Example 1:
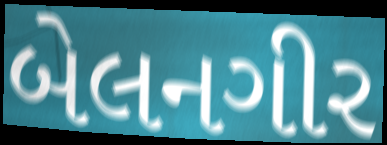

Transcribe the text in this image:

બેલનગીર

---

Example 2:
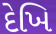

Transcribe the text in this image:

દેખિ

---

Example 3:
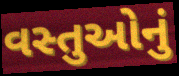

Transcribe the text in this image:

વસ્તુઓનું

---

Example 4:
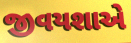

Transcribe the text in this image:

જીવયશાએ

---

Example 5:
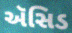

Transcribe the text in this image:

ઍસિડ